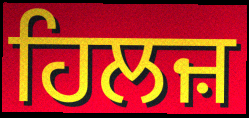
ਹਿਲਜ਼